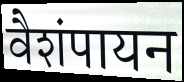
वैशंपायन